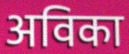
अविका